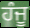
ਹੰਜੂ